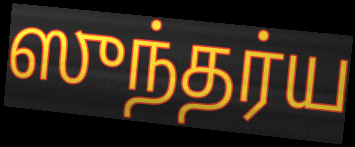
ஸுந்தர்ய